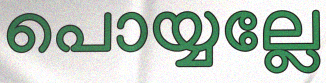
പൊയ്യല്ലേ